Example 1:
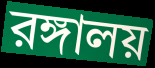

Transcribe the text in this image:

রঙ্গালয়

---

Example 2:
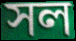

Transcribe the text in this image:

সল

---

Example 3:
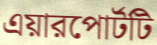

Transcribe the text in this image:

এয়ারপোর্টটি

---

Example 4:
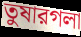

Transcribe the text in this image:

তুষারগলা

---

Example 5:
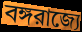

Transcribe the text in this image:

বঙ্গরাজ্যে